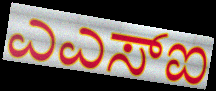
ಎಎಸ್ಐ